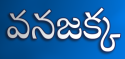
వనజక్క